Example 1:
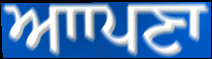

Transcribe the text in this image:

ਆਾਪਣਾ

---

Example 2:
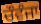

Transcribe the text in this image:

ਚੌਵੰਜਾ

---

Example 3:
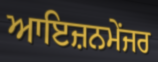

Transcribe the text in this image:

ਆਇਜ਼ਨਮੇਂਜਰ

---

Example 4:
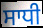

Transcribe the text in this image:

ਸਾਧੀ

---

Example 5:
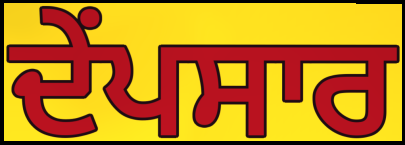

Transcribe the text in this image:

ਦੇਂਪਸਾਰ